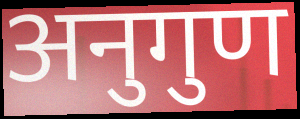
अनुगुण